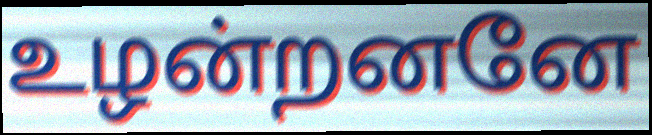
உழன்றனனே